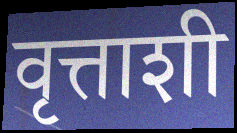
वृत्ताशी